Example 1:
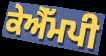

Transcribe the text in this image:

ਕੇਐੱਮਪੀ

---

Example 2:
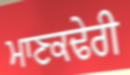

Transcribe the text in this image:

ਮਾਣਕਢੇਰੀ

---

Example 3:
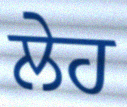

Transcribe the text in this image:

ਲੇਹ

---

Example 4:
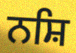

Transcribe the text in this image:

ਨਸ਼ਿ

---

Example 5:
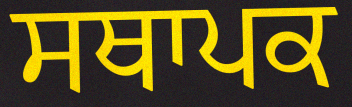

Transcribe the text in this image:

ਸਥਾਪਕ